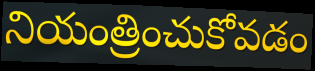
నియంత్రించుకోవడం